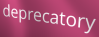
deprecatory